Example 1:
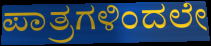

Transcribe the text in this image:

ಪಾತ್ರಗಳಿಂದಲೇ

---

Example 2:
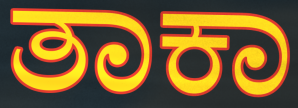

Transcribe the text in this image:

ತಾಕಾ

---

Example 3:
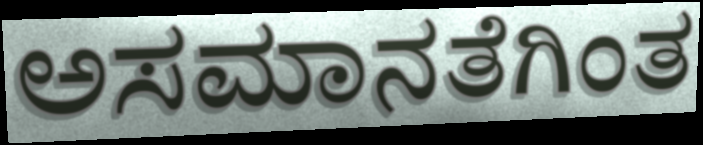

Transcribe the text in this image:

ಅಸಮಾನತೆಗಿಂತ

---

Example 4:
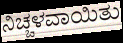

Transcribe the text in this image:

ನಿಚ್ಚಳವಾಯಿತು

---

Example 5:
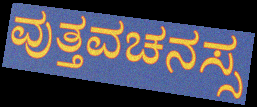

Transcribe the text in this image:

ವುತ್ತವಚನಸ್ಸ